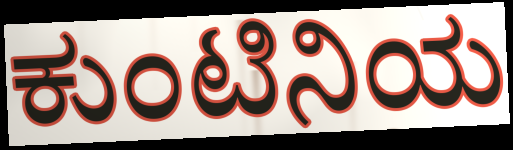
ಕುಂಟಿನಿಯ